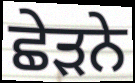
ਛੇੜਨੇ